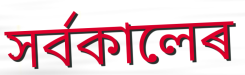
সৰ্বকালেৰ